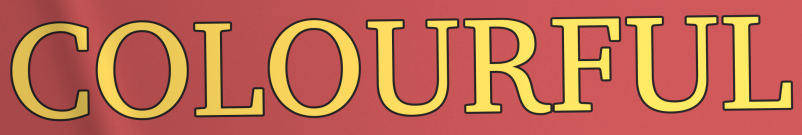
COLOURFUL